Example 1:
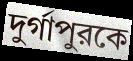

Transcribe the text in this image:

দুর্গাপুরকে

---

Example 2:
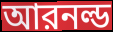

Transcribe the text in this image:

আরনল্ড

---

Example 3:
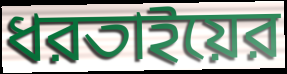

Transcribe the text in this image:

ধরতাইয়ের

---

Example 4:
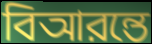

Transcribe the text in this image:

বিআরন্তে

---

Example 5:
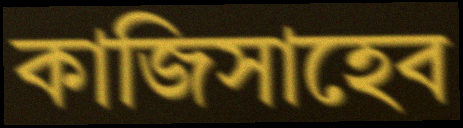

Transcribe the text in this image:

কাজিসাহেব